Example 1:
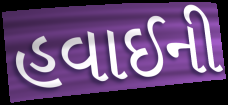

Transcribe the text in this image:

હવાઈની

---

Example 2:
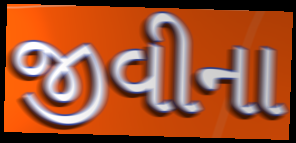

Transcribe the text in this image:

જીવીના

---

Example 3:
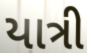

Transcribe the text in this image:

યાત્રી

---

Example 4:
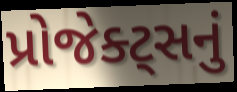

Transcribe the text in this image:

પ્રોજેક્ટ્સનું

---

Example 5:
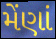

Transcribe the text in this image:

મેંણાં